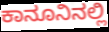
ಕಾನೂನಿನಲ್ಲಿ